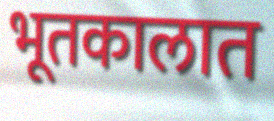
भूतकालात